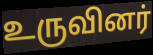
உருவினர்